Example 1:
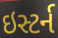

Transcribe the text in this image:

ઇસ્ટર્ન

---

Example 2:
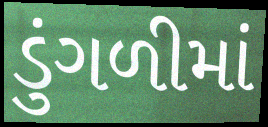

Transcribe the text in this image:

ડુંગળીમાં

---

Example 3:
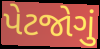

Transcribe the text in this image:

પેટજોગું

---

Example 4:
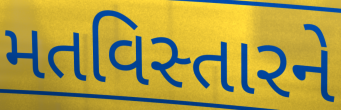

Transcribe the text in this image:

મતવિસ્તારને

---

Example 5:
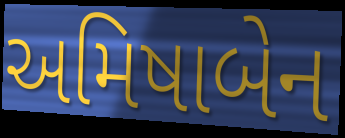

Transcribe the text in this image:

અમિષાબેન